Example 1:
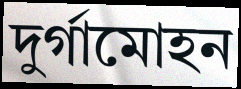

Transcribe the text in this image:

দুর্গামোহন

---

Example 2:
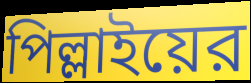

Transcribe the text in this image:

পিল্লাইয়ের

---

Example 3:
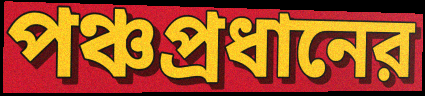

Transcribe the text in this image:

পঞ্চপ্রধানের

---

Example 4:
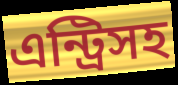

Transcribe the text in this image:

এন্ট্রিসহ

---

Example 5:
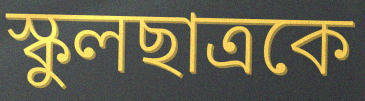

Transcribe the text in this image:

স্কুলছাত্রকে